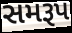
સમરૂપ